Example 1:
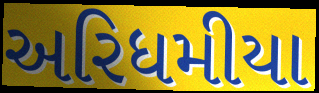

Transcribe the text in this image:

અરિધમીયા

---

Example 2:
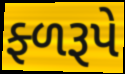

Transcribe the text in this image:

ફ્ળરૂપે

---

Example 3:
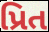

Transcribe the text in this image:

પ્રિત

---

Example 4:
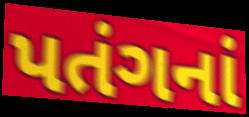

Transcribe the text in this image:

પતંગનાં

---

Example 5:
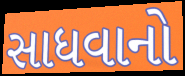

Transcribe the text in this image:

સાધવાનો